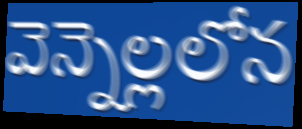
వెన్నెల్లలోన